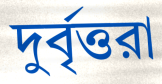
দুর্বৃত্তরা